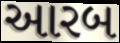
આરબ